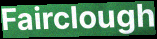
Fairclough